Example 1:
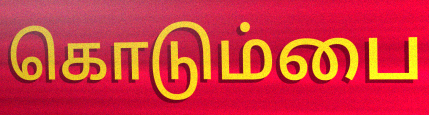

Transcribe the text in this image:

கொடும்பை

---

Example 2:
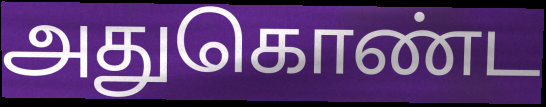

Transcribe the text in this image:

அதுகொண்ட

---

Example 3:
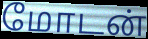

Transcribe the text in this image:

மோடன்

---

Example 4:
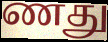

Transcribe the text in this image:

ணது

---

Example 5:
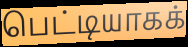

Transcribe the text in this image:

பெட்டியாகக்